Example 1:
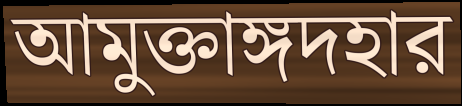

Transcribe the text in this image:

আমুক্তাঙ্গদহার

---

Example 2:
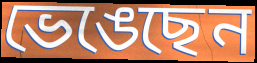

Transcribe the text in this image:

ভেঙেছেন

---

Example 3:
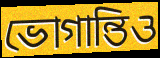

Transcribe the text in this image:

ভোগান্তিও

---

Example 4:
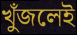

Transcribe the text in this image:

খুঁজলেই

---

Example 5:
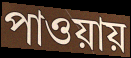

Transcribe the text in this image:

পাওয়ায়